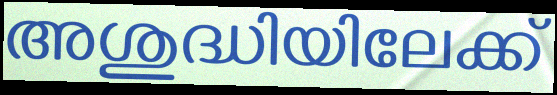
അശുദ്ധിയിലേക്ക്